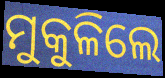
ମୁକୁଳିଲେ